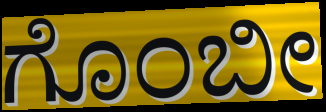
ಗೊಂಬೀ